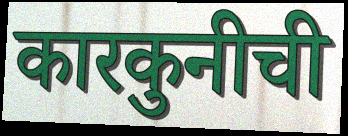
कारकुनीची